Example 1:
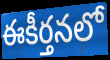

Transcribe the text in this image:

ఈకీర్తనలో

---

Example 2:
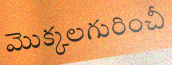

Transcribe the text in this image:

మొక్కలగురించీ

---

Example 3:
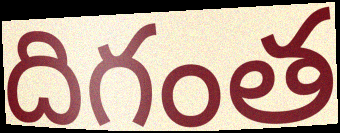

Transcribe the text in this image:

దిగంత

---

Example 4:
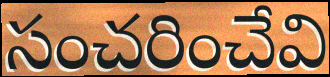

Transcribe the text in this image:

సంచరించేవి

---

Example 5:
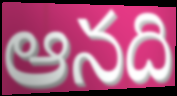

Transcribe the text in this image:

ఆనది